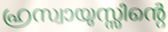
ഹ്രസ്വായുസ്സിന്റെ